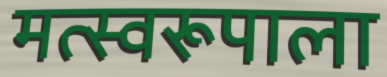
मत्स्वरूपाला